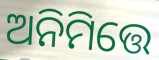
ଅନିମିତ୍ତେ